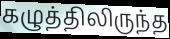
கழுத்திலிருந்த